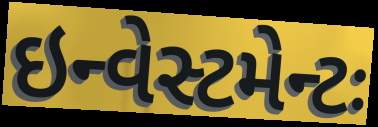
ઇન્વેસ્ટમેન્ટઃ